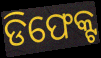
ଡିଫେକ୍ଟ